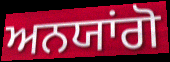
ਅਨਯਾਂਗੋ